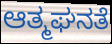
ಆತ್ಮಘನತೆ